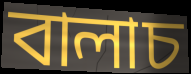
বালাচ